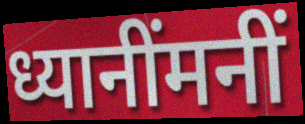
ध्यानींमनीं